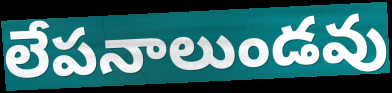
లేపనాలుండవు